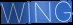
WING